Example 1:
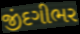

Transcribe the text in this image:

જીંદગીભર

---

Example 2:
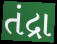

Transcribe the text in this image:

તંદ્રા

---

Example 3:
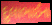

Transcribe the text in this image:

દુલાભાઈના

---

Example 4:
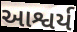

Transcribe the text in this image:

આશ્વર્ય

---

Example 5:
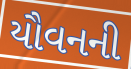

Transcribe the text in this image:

યૌવનની